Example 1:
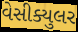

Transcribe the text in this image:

વેસીક્યુલર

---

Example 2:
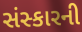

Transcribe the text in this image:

સંસ્કારની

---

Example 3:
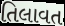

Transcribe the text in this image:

તિલાવત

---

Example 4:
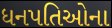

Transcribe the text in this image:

ધનપતિઓના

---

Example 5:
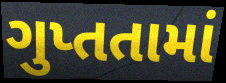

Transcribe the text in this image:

ગુપ્તતામાં